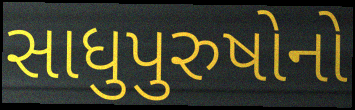
સાધુપુરુષોનો